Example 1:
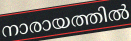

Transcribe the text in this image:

നാരായത്തിൽ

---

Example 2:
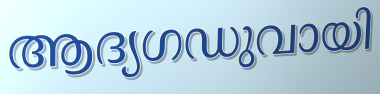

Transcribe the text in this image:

ആദ്യഗഡുവായി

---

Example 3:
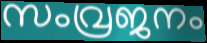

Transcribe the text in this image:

സംവ്രജനം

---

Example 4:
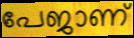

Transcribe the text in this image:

പേജാണ്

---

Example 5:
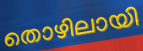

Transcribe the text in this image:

തൊഴിലായി